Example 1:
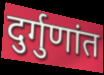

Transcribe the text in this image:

दुर्गुणांत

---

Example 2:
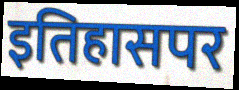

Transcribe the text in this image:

इतिहासपर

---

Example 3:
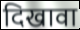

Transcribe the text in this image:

दिखावा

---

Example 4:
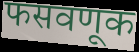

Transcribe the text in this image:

फसवणूक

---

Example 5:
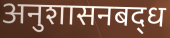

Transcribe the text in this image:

अनुशासनबद्ध